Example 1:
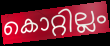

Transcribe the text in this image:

കൊറ്റില്ലം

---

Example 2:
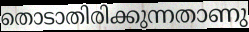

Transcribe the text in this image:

തൊടാതിരിക്കുന്നതാണു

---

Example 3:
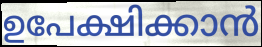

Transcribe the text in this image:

ഉപേക്ഷിക്കാൻ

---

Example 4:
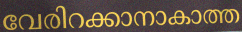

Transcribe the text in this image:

വേരിറക്കാനാകാത്ത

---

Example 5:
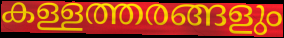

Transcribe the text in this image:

കള്ളത്തരങ്ങളും